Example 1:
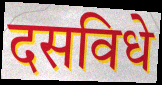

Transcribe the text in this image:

दसविधे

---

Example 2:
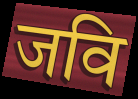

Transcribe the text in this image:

जवि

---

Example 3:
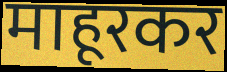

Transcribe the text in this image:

माहूरकर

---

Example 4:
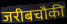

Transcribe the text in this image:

जरीबचौकी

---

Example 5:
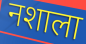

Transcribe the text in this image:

नशाला